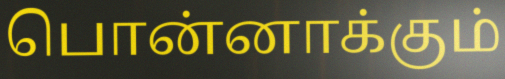
பொன்னாக்கும்